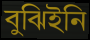
বুঝিইনি